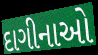
દાગીનાઓ